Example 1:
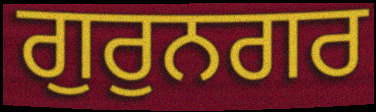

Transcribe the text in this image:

ਗੁਰੁਨਗਰ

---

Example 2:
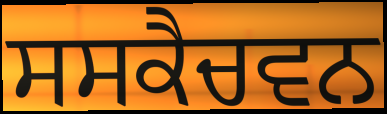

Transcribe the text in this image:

ਸਸਕੈਚਵਨ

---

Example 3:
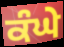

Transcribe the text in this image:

ਕੰਘੇ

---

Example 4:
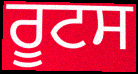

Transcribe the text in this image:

ਰੂਟਸ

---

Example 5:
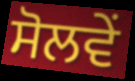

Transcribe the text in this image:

ਸੋਲਵੇਂ